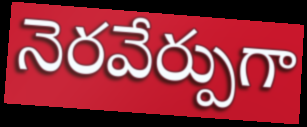
నెరవేర్పుగా